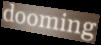
dooming